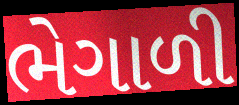
ભેગાળી